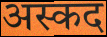
अस्कद